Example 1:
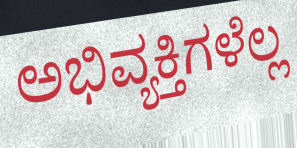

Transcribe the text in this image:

ಅಭಿವ್ಯಕ್ತಿಗಳೆಲ್ಲ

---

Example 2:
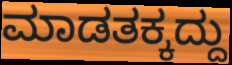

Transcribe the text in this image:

ಮಾಡತಕ್ಕದ್ದು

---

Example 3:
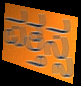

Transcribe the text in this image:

ಪತ್ತಸ್ಸ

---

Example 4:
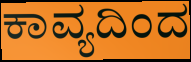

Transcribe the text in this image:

ಕಾವ್ಯದಿಂದ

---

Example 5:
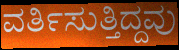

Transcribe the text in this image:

ವರ್ತಿಸುತ್ತಿದ್ದವು